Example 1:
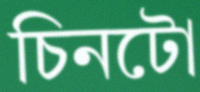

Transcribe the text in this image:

চিনটো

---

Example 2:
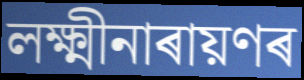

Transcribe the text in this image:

লক্ষ্মীনাৰায়ণৰ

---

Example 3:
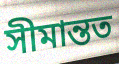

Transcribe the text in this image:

সীমান্তত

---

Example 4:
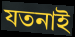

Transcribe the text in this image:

যতনাই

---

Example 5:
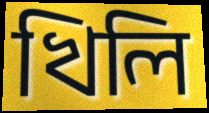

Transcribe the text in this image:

খিলি